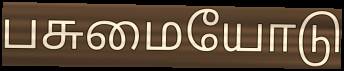
பசுமையோடு